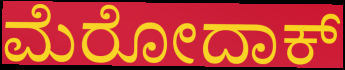
ಮೆರೋದಾಕ್